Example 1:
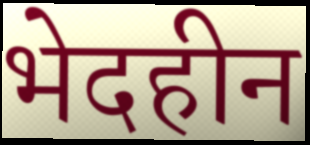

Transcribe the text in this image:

भेदहीन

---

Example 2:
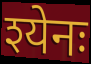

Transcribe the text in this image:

श्येनः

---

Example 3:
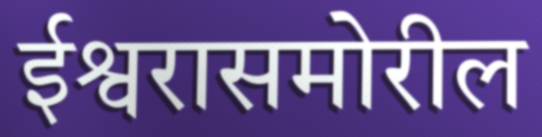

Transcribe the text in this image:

ईश्वरासमोरील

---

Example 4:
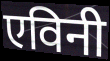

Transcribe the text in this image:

एविनी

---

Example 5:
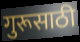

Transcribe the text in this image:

गुरूसाठी